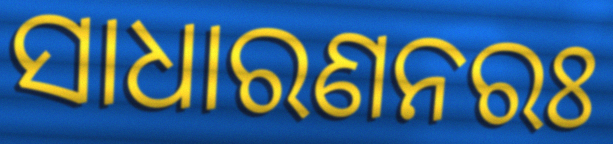
ସାଧାରଣନରଃ